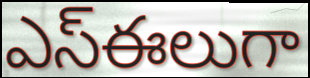
ఎస్ఈలుగా